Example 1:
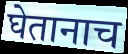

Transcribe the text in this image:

घेतानाच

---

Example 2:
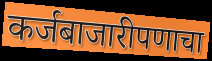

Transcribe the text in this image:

कर्जबाजारीपणाचा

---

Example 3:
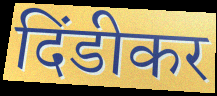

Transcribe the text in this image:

दिंडीकर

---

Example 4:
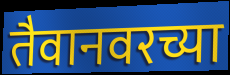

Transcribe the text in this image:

तैवानवरच्या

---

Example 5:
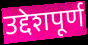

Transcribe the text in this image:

उद्देशपूर्ण